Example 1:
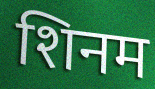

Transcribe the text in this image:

शिनम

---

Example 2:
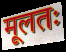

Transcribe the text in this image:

मूलतः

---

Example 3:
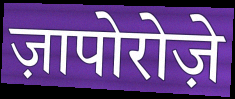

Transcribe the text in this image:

ज़ापोरोज़े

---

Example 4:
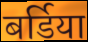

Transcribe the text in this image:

बर्डिया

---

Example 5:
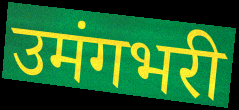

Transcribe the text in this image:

उमंगभरी